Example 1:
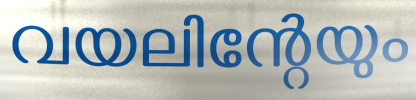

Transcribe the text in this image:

വയലിന്റേയും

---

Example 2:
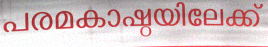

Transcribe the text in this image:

പരമകാഷ്ഠയിലേക്ക്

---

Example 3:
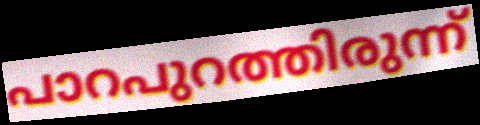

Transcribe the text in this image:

പാറപുറത്തിരുന്ന്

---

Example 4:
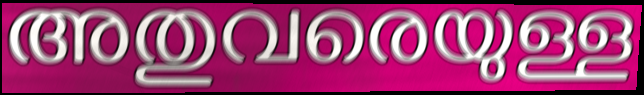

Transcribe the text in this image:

അതുവരെയുള്ള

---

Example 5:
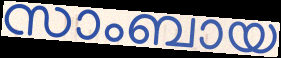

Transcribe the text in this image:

സാംബായ